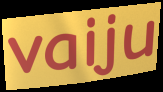
vaiju